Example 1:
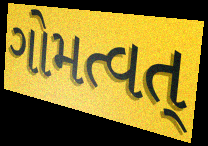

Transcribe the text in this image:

ગોમત્વત્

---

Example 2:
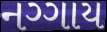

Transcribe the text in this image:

નગ્ગાય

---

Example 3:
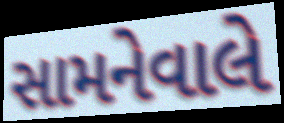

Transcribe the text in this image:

સામનેવાલે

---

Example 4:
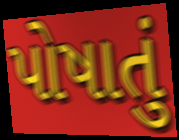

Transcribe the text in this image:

પોષાતું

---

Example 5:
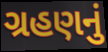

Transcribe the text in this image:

ગ્રહણનું